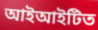
আইআইটিত